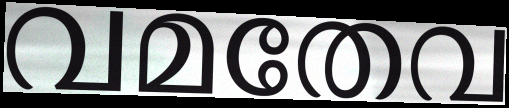
വമതേവ